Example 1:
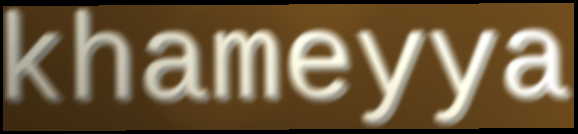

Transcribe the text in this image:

khameyya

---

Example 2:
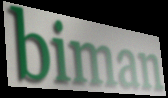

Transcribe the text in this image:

biman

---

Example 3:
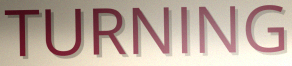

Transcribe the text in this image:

TURNING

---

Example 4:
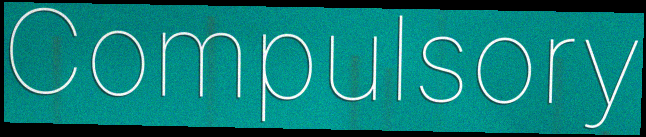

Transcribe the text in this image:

Compulsory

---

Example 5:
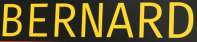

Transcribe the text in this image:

BERNARD